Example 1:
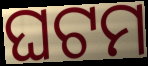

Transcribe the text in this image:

ଘଟମ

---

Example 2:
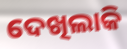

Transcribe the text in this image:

ଦେଖିଲାକି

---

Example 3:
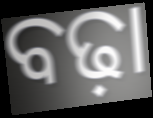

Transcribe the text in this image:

ବଢ଼ା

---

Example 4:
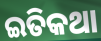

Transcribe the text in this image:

ଇତିକଥା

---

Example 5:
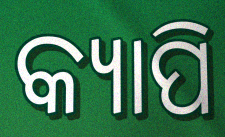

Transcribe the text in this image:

କ୍ୟାପି